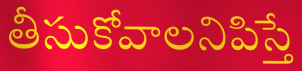
తీసుకోవాలనిపిస్తే